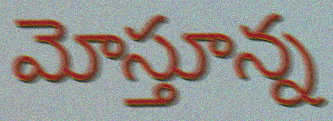
మోస్తూన్న